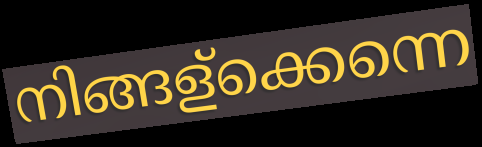
നിങ്ങള്ക്കെന്നെ